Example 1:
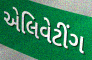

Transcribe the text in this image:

એલિવેટીંગ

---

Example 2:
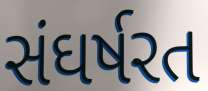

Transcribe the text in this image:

સંઘર્ષરત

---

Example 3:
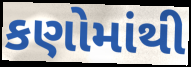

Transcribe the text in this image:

કણોમાંથી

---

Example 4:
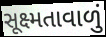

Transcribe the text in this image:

સૂક્ષ્મતાવાળું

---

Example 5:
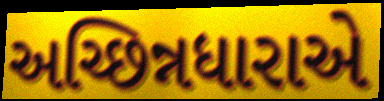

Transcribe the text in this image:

અચ્છિન્નધારાએ